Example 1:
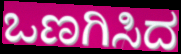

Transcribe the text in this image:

ಒಣಗಿಸಿದ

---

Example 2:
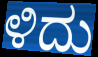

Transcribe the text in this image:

ಳಿದು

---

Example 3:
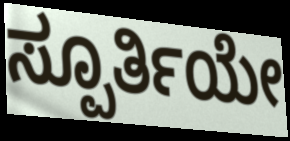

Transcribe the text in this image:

ಸ್ಪೂರ್ತಿಯೇ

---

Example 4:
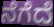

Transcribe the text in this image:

ನೆಗೆದೆ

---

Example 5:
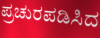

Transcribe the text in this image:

ಪ್ರಚುರಪಡಿಸಿದ